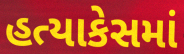
હત્યાકેસમાં